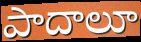
పాదాలూ